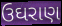
ઉઘરાણ